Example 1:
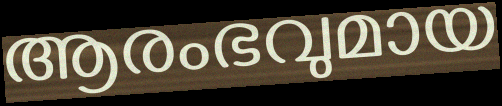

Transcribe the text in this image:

ആരംഭവുമായ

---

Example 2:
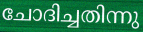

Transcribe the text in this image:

ചോദിച്ചതിന്നു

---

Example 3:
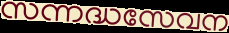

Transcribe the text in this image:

സന്നദ്ധസേവന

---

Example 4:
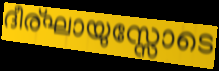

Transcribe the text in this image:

ദീര്ഘായുസ്സോടെ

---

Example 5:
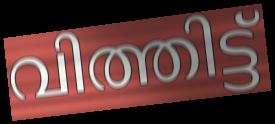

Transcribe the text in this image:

വിത്തിട്ട്